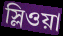
স্লিওয়া